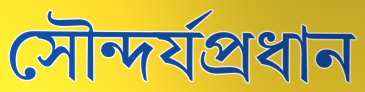
সৌন্দর্যপ্রধান